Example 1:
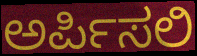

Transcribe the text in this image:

ಅರ್ಪಿಸಲಿ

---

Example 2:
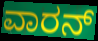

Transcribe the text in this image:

ವಾರನ್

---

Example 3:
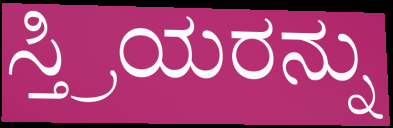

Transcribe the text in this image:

ಸ್ತ್ರಿಯರನ್ನು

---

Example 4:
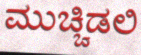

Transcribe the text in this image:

ಮುಚ್ಚಿಡಲಿ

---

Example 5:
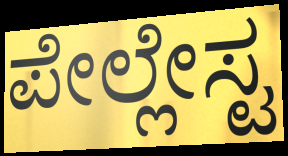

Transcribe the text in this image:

ಪೇಲ್ಲೇಸ್ಟ